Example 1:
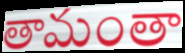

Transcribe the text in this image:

తామంతా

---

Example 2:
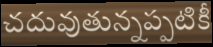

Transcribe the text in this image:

చదువుతున్నప్పటికీ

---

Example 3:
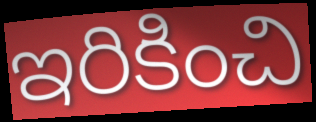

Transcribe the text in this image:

ఇరికించి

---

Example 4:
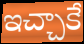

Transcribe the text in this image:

ఇచ్చాకే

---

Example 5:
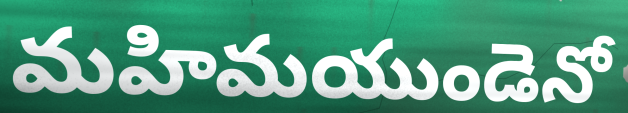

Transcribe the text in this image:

మహిమయుండెనో